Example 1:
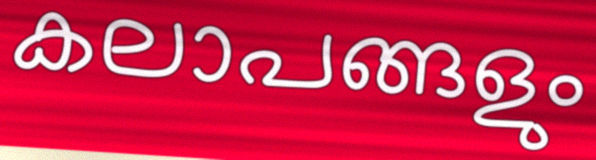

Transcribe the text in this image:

കലാപങ്ങളും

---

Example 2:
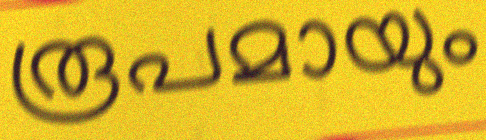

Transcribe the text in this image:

രൂപമായും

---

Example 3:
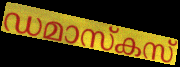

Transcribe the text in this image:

ഡമാസ്കസ്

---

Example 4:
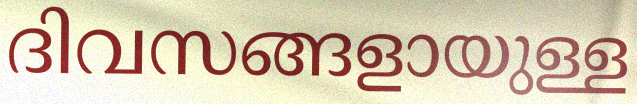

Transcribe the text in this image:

ദിവസങ്ങളായുള്ള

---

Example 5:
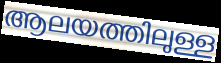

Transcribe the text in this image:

ആലയത്തിലുള്ള